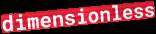
dimensionless